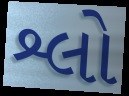
શ્લો